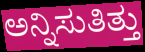
ಅನ್ನಿಸುತಿತ್ತು